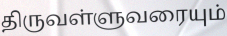
திருவள்ளுவரையும்